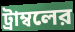
ট্রাম্বলের